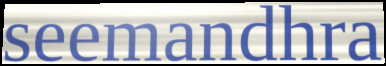
seemandhra